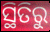
ସ୍ଥିତିରୁ